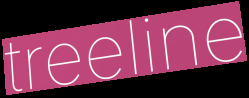
treeline